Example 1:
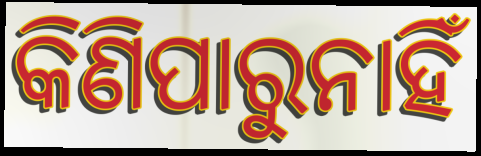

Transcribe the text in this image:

କିଣିପାରୁନାହିଁ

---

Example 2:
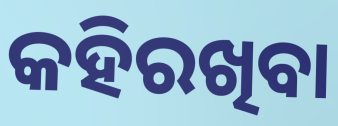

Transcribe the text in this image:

କହିରଖିବା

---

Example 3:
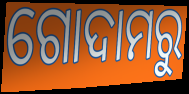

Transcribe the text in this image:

ଗୋଦାମରୁ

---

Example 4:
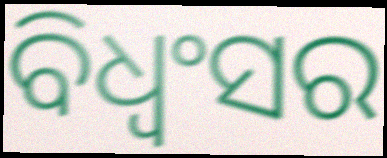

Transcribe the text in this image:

ବିଧ୍ୱଂସର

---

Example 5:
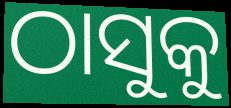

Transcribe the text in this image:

ଠାସୁକୁ